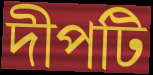
দীপটি